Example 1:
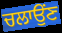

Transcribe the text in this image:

ਚਲਾਉਂਣ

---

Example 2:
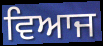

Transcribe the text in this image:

ਵਿਆਜ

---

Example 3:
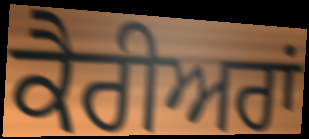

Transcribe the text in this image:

ਕੈਰੀਅਰਾਂ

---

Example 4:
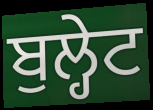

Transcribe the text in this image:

ਬੁਲ੍ਹੇਟ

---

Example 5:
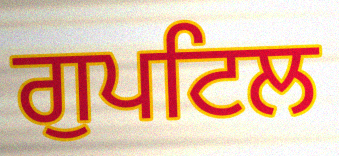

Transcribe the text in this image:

ਗੁਪਟਿਲ